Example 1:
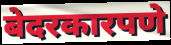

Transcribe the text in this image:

बेदरकारपणे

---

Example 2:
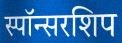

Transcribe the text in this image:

स्पॉन्सरशिप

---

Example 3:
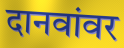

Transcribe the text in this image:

दानवांवर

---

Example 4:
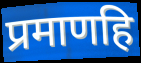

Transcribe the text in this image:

प्रमाणहि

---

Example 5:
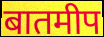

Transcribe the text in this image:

बातमीप